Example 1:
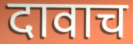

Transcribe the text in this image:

दावाच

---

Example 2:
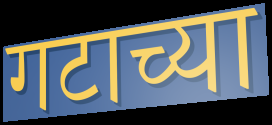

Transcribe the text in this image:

गटाच्या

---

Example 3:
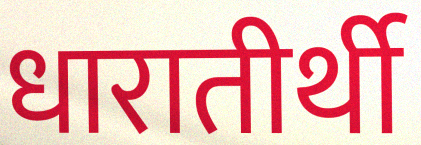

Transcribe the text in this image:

धारातीर्थी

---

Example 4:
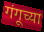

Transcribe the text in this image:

गंगूच्या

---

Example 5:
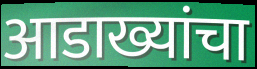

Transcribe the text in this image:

आडाख्यांचा